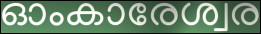
ഓംകാരേശ്വര